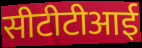
सीटीटीआई